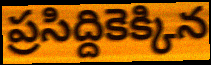
ప్రసిద్దికెక్కిన